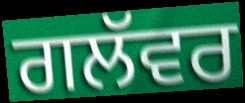
ਗਲੱਵਰ